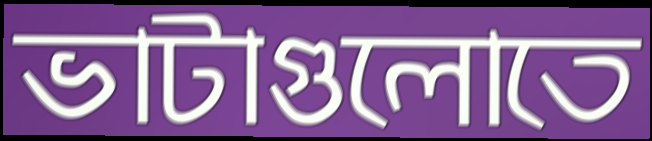
ভাটাগুলোতে